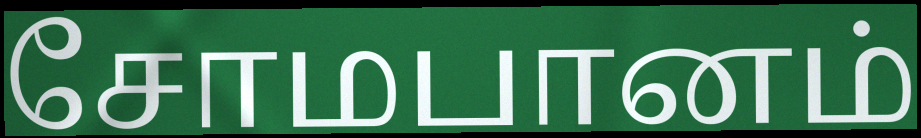
சோமபானம்